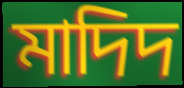
মাদিদ